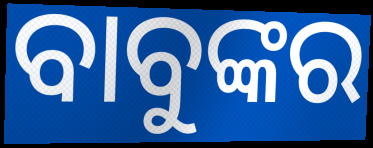
ବାବୁଙ୍କର